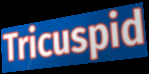
Tricuspid